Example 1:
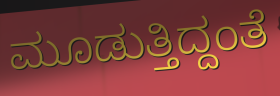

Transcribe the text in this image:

ಮೂಡುತ್ತಿದ್ದಂತೆ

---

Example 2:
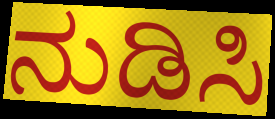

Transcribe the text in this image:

ನುಡಿಸಿ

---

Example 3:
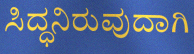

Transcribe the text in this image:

ಸಿದ್ಧನಿರುವುದಾಗಿ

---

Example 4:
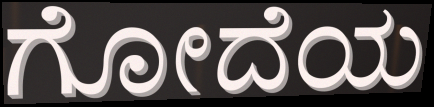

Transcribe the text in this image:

ಗೋದೆಯ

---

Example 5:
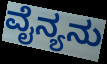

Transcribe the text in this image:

ವೈನ್ಯನು